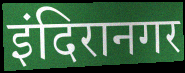
इंदिरानगर